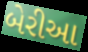
બેરીઆ